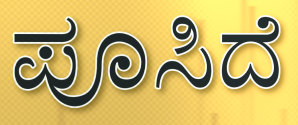
ಪೂಸಿದೆ